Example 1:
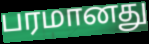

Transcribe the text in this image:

பரமானது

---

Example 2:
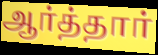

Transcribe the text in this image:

ஆர்த்தார்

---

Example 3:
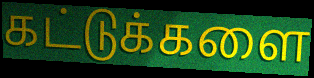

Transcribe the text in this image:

கட்டுக்களை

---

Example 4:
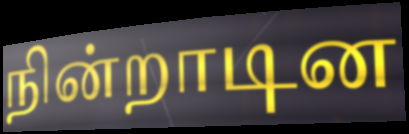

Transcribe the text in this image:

நின்றாடின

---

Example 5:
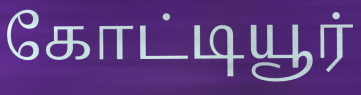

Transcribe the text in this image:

கோட்டியூர்